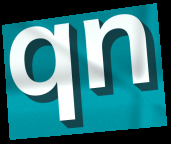
qn